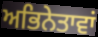
ਅਭਿਨੇਤਾਵਾਂ